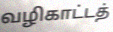
வழிகாட்டத்